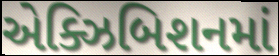
એક્ઝિબિશનમાં